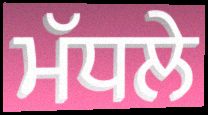
ਮੱਧਲੇ